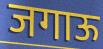
जगाऊ